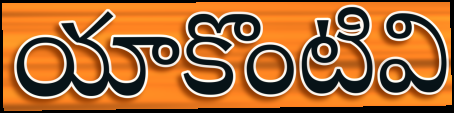
యాకొంటివి